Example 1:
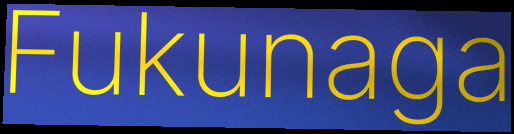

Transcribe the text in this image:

Fukunaga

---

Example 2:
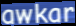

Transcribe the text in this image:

awkar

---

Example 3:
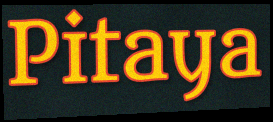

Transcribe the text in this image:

Pitaya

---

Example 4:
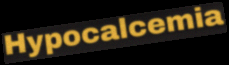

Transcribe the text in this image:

Hypocalcemia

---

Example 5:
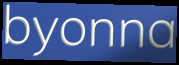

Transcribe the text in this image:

byonna